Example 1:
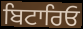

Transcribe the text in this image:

ਬਿਟਾਰਿਓ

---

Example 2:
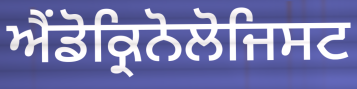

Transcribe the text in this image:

ਐਂਡੋਕ੍ਰਿਨੋਲੋਜਿਸਟ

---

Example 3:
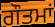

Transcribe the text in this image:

ਗੌਤਮਾਂ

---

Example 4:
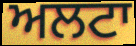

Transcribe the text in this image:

ਅਲਟਾ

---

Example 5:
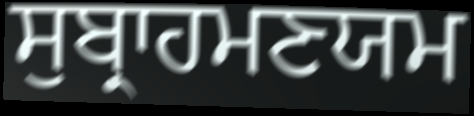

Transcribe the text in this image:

ਸੁਬ੍ਰਾਹਮਣਯਮ